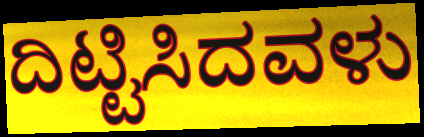
ದಿಟ್ಟಿಸಿದವಳು